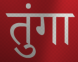
तुंगा